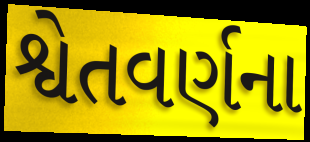
શ્વેતવર્ણના